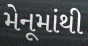
મેનૂમાંથી